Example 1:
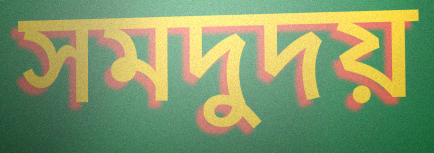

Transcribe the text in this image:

সমদুদয়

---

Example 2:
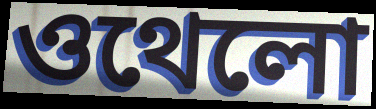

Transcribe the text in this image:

ওথেলো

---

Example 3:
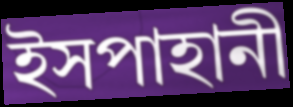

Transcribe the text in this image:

ইসপাহানী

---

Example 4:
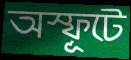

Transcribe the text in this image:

অস্ফূটে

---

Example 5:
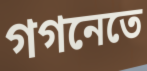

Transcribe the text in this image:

গগনেতে